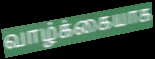
வாழ்க்கையாக